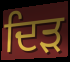
ਦਿੜ